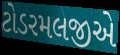
ટોડરમલજીએ